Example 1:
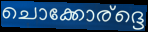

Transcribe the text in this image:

ചൊക്കോര്ദ്ദെ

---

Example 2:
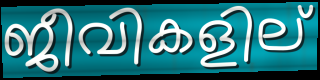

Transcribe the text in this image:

ജീവികളില്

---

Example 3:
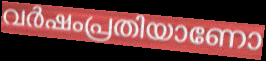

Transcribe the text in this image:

വർഷംപ്രതിയാണോ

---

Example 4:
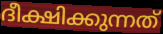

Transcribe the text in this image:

ദീക്ഷിക്കുന്നത്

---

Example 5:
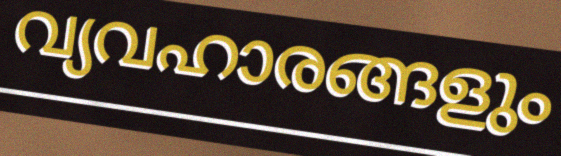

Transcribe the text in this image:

വ്യവഹാരങ്ങളും